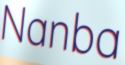
Nanba